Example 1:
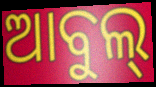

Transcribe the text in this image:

ଆବୁଲ୍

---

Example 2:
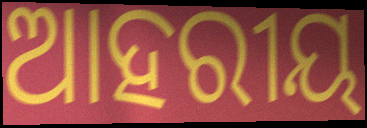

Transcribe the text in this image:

ଆହରୀୟ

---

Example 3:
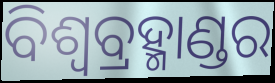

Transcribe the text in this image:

ବିଶ୍ୱବ୍ରହ୍ମାଣ୍ଡର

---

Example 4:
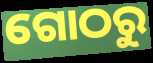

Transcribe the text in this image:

ଗୋଠରୁ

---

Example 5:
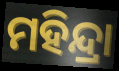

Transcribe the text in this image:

ମହିନ୍ଦ୍ରା